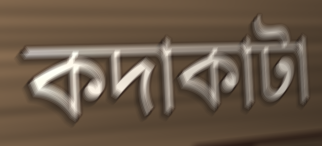
কদাকাটা